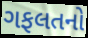
ગફલતનો